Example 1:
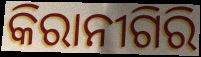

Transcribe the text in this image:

କିରାନୀଗିରି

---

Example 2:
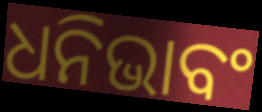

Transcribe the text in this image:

ଧନିଭାବଂ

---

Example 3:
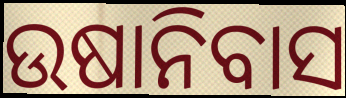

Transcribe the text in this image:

ଉଷାନିବାସ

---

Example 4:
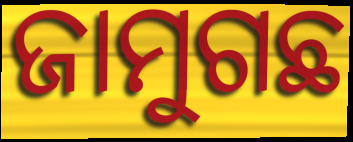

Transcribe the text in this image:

ଜାମୁଗଛ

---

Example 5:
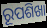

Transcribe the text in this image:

ରୂପଶିଖା